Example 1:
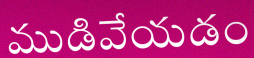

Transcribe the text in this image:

ముడివేయడం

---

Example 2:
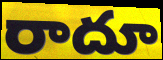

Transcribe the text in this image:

రాదూ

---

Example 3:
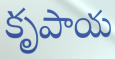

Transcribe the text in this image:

కృపాయ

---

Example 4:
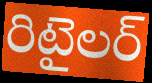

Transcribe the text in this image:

రిటైలర్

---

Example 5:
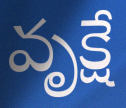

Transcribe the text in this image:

వృక్షే